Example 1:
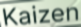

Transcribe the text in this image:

Kaizen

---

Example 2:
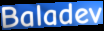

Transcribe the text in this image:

Baladev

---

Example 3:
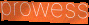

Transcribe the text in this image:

prowess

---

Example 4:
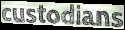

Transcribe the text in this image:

custodians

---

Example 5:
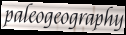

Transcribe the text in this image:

paleogeography